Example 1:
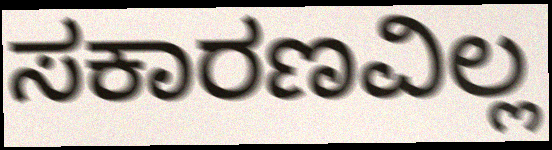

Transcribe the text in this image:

ಸಕಾರಣವಿಲ್ಲ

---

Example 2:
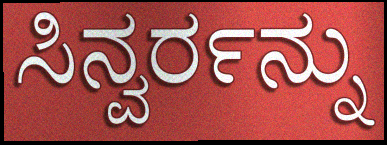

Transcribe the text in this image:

ಸಿನ್ವರ್ರನ್ನು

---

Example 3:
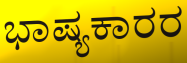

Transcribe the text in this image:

ಭಾಷ್ಯಕಾರರ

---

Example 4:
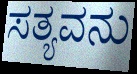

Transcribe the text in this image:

ಸತ್ಯವನು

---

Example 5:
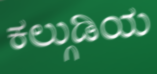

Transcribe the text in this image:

ಕಲ್ಗುಡಿಯ